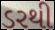
ડરથી